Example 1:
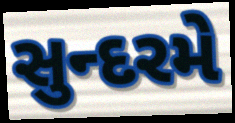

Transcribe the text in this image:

સુન્દરમે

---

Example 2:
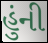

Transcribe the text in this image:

હુંની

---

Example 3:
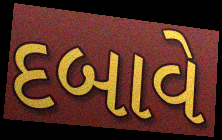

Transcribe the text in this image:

દબાવે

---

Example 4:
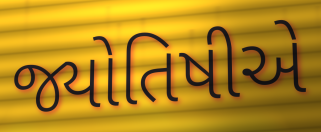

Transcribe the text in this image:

જ્યોતિષીએ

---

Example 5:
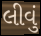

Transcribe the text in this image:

લીવું